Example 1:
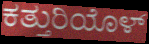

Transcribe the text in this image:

ಕತ್ತುರಿಯೊಳ್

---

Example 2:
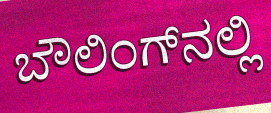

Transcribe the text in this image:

ಬೌಲಿಂಗ್‌ನಲ್ಲಿ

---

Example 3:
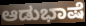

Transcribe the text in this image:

ಆಡುಭಾಷೆ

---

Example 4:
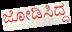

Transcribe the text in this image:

ಜೋಡಿಸಿದ್ದ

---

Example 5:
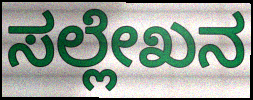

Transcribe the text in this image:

ಸಲ್ಲೇಖನ